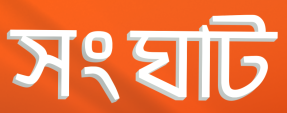
সংঘাট